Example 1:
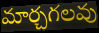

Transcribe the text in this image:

మార్చగలవు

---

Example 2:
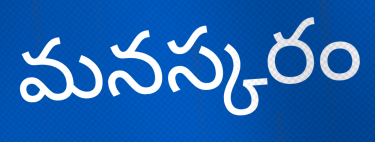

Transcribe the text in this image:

మనస్కరం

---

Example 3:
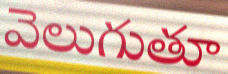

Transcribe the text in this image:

వెలుగుతూ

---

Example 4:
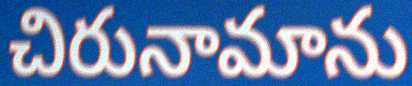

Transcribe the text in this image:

చిరునామాను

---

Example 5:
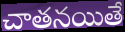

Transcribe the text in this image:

చాతనయితే